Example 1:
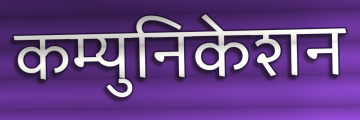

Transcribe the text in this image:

कम्युनिकेशन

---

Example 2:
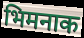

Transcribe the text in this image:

भिमनाक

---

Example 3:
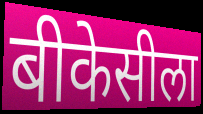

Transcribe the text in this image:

बीकेसीला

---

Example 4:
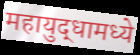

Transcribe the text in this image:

महायुद्धामध्ये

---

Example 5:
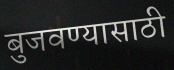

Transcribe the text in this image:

बुजवण्यासाठी